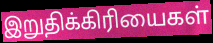
இறுதிக்கிரியைகள்